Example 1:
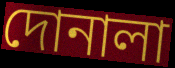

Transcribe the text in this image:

দোনালা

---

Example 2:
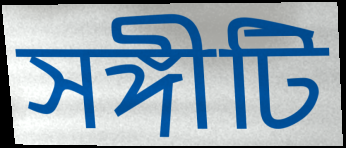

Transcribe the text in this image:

সঙ্গীটি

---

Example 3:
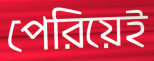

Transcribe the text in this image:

পেরিয়েই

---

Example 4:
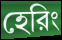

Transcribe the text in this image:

হেরিং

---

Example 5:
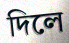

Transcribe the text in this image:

দিলে